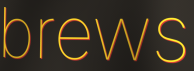
brews